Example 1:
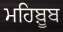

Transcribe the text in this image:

ਮਹਿਬ਼ੂਬ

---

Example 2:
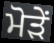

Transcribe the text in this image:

ਮੋੜੇਂ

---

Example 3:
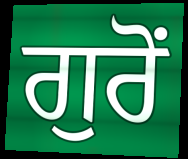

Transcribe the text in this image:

ਗੁਰੋਂ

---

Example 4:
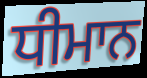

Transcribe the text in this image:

ਧੀਮਾਨ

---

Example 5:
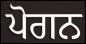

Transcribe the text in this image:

ਪੋਗਨ